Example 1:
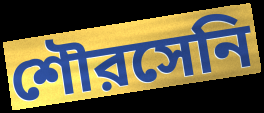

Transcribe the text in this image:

শৌরসেনি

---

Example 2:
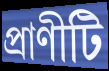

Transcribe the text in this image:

প্রাণীটি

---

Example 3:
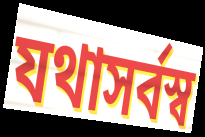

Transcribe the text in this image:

যথাসর্বস্ব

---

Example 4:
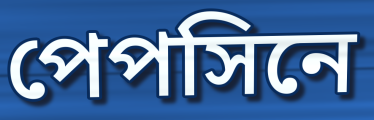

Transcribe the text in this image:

পেপসিনে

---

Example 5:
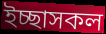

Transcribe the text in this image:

ইচ্ছাসকল